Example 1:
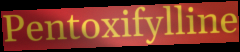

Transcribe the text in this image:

Pentoxifylline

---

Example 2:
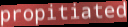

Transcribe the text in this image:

propitiated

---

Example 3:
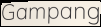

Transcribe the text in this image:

Gampang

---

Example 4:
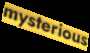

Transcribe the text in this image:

mysterious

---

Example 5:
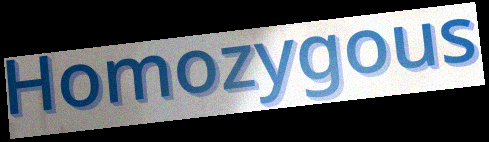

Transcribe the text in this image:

Homozygous